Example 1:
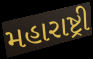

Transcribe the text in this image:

મહારાષ્ટ્રી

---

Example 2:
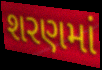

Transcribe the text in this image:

શરણમાં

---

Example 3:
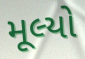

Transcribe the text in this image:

મૂલ્યો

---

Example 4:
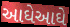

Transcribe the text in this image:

આઘેઆઘે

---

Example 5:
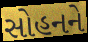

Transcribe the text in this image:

સોહનને